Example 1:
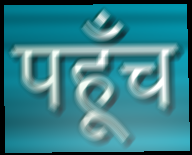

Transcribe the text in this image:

पहूँच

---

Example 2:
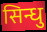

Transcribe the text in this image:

सिन्धु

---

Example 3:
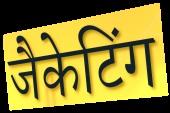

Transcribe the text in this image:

जैकेटिंग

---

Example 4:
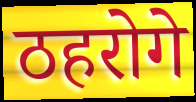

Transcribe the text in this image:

ठहरोगे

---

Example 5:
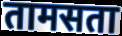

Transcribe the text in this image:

तामसता